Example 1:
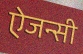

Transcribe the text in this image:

ऐजन्सी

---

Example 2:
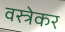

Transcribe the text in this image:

वस्त्रेकर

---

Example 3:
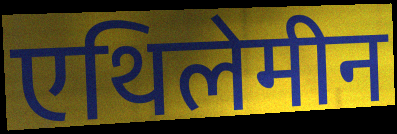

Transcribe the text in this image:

एथिलेमीन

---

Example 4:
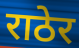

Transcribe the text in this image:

राठेर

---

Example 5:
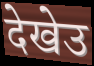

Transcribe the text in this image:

देखेउ